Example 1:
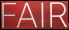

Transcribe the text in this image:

FAIR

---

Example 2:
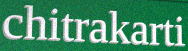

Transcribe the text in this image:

chitrakarti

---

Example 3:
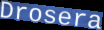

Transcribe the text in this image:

Drosera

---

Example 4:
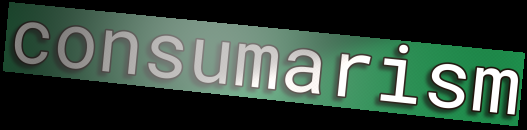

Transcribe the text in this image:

consumarism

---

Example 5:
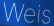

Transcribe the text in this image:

Weis